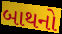
બાથનો